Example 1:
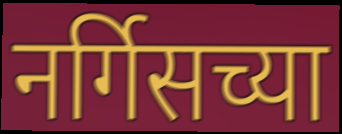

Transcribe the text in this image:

नर्गिसच्या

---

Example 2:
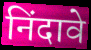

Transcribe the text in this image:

निंदावे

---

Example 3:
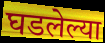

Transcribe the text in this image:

घडलेल्या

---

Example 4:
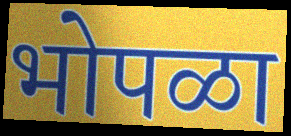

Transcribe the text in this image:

भोपळा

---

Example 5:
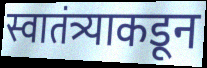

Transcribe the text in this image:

स्वातंत्र्याकडून